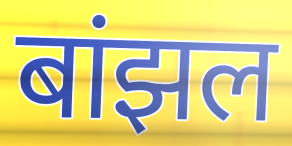
बांझल